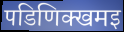
पडिणिक्खमइ